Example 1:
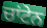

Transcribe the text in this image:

ਚਾਂਟੇਨ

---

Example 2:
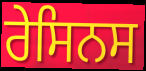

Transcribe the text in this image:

ਰੇਸਿਨਸ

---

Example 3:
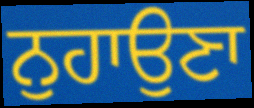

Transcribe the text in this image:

ਨੁਹਾਉਣਾ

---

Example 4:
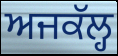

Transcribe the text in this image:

ਅਜਕੱਲ੍ਹ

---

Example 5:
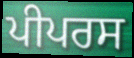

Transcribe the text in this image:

ਪੀਪਰਸ